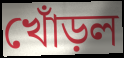
খোঁড়ল